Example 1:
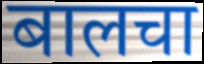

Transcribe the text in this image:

बालचा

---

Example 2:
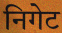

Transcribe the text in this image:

निगेट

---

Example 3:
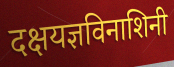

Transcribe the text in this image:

दक्षयज्ञविनाशिनी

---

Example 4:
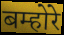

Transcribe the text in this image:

बम्होरे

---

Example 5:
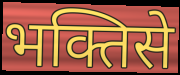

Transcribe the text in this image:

भक्तिसे